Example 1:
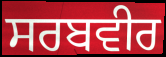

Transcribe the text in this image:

ਸਰਬਵੀਰ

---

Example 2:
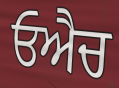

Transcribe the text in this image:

ਓਐਚ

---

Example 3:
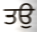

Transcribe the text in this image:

ਤਉ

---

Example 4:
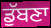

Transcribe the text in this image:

ਡੁੱਬਣਾ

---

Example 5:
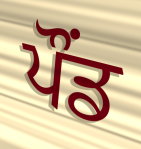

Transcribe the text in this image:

ਪੌਂਡ